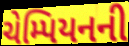
ચેમ્પિયનની